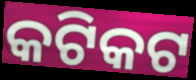
କଟିକଟ